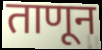
ताणून